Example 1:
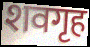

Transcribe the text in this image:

शवगृह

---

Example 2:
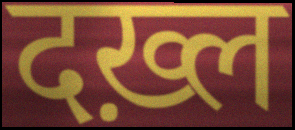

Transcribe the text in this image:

दख़्ल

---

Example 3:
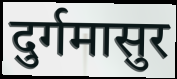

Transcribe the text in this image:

दुर्गमासुर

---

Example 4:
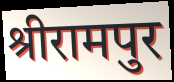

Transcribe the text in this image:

श्रीरामपुर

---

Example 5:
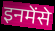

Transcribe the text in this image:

इनमेंसे